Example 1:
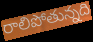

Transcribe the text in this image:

రాలిపోతున్నది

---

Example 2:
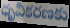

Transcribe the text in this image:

ధృవీకరణకు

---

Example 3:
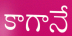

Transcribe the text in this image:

కాగానే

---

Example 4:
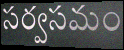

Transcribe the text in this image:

సర్వసమం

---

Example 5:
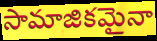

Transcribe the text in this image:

సామాజికమైనా